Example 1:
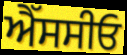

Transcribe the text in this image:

ਐੱਸਸੀਓ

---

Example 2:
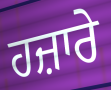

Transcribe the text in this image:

ਹਜ਼ਾਰੇ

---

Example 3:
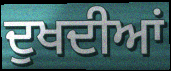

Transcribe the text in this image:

ਦੁਖਦੀਆਂ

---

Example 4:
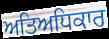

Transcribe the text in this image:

ਅਤਿਅਧਿਕਾਰ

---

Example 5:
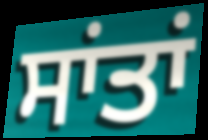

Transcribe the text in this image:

ਸਾਂਤਾਂ